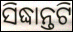
ସିଦ୍ଧାନ୍ତଟି